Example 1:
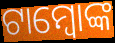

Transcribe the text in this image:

ଟାମ୍ବୋଙ୍କ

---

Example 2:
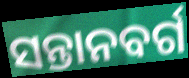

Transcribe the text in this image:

ସନ୍ତାନବର୍ଗ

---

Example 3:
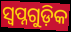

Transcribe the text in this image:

ସ୍ୱପ୍ନଗୁଡ଼ିକ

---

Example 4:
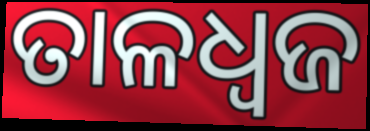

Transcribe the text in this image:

ତାଳଧ୍ୱଜ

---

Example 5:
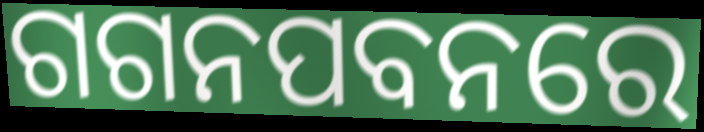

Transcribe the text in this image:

ଗଗନପବନରେ